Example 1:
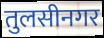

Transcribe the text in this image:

तुलसीनगर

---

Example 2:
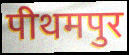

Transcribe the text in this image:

पीथमपुर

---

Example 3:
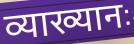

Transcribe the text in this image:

व्याख्यानः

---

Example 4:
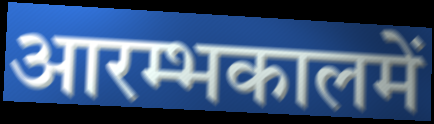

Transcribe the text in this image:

आरम्भकालमें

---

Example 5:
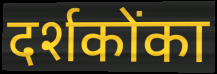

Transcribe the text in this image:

दर्शकोंका